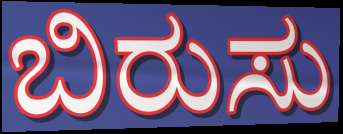
ಬಿರುಸು